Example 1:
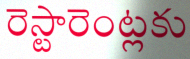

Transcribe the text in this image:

రెస్టారెంట్లకు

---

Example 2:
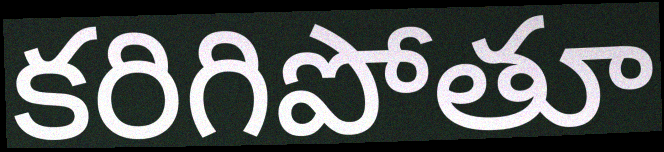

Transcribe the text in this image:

కరిగిపోతూ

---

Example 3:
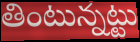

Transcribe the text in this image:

తింటున్నట్టు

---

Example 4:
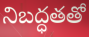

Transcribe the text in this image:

నిబద్ధతతో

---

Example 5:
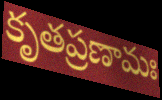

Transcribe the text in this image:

కృతప్రణామః